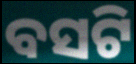
ବସଟି